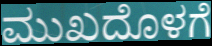
ಮುಖದೊಳಗೆ